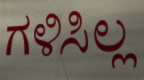
ಗಳಿಸಿಲ್ಲ